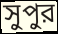
সুপুর